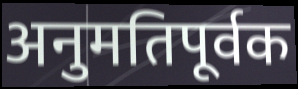
अनुमतिपूर्वक